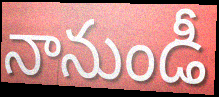
నానుండీ